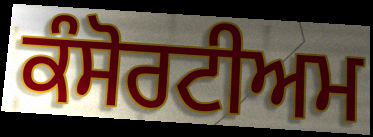
ਕੰਸੋਰਟੀਅਮ